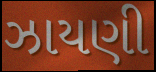
ઝાયણી